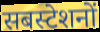
सबस्टेशनों